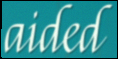
aided